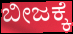
ಬೀಜಕ್ಕೆ